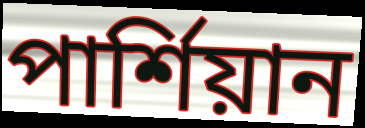
পার্শিয়ান